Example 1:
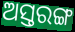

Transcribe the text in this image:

ଅସ୍ତରଙ୍ଗ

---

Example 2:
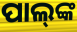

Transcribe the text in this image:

ପାଲ୍‌ଙ୍କ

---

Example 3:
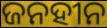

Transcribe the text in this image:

ଜନହୀନ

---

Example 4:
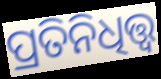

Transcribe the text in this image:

ପ୍ରତିନିଧିତ୍ତ୍ୱ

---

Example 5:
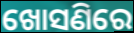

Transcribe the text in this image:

ଖୋସଣିରେ